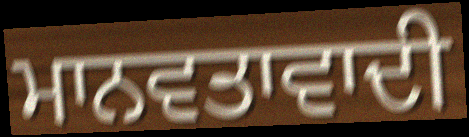
ਮਾਨਵਤਾਵਾਦੀ